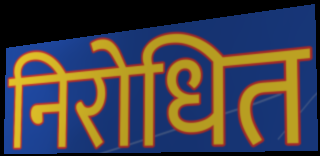
निरोधित